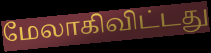
மேலாகிவிட்டது